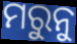
ମରୁନୁ